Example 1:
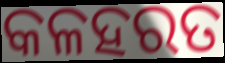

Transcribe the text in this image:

କଳହରତ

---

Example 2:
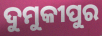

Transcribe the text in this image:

ଦୁମୁକୀପୁର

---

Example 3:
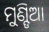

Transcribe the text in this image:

ମୁଣ୍ଡିଆ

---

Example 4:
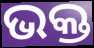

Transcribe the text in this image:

ଭକ୍ତ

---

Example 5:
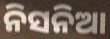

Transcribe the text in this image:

ନିସନିଆ